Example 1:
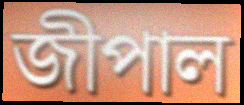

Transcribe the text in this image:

জীপাল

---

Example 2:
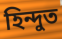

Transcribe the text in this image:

হিন্দুত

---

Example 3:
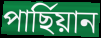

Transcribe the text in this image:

পাৰ্ছিয়ান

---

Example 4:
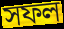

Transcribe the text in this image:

সফল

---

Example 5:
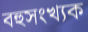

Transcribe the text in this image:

বহুসংখ্যক